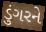
ડુંગરને